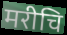
मरीचि